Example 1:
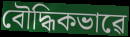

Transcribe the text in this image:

বৌদ্ধিকভাৱে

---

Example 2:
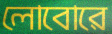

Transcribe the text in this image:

লোবোৱে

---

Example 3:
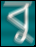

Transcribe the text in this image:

বু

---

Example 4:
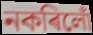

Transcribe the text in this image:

নকৰিলোঁ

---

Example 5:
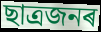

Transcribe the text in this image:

ছাত্ৰজনৰ